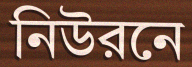
নিউরনে